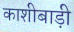
काशीबाड़ी